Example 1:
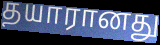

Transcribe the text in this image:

தயாரானது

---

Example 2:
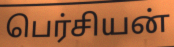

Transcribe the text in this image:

பெர்சியன்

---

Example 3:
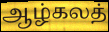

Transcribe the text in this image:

ஆழ்கலத்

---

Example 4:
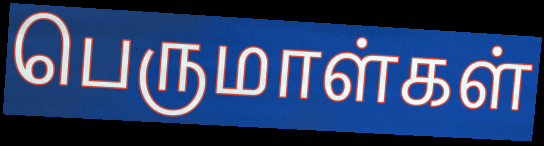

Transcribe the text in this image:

பெருமாள்கள்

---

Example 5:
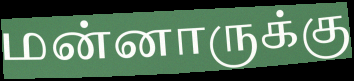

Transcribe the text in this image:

மன்னாருக்கு